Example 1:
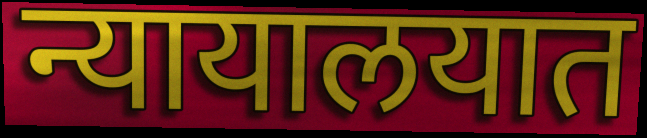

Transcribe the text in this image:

न्यायालयात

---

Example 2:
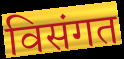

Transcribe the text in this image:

विसंगत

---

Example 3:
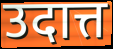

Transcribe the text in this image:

उदात्त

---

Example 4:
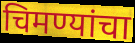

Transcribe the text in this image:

चिमण्यांचा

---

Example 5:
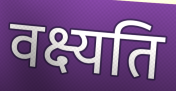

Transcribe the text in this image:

वक्ष्यति